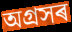
অগ্ৰসৰ